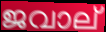
ജവാല്